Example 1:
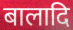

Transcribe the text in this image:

बालादि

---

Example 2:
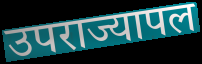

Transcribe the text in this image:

उपराज्यापल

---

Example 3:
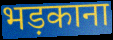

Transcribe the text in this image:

भड़काना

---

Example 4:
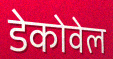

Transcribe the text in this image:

डेकोवेल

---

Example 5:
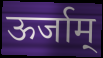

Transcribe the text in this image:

ऊर्जाम्